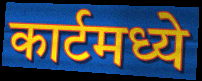
कार्टमध्ये